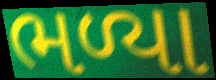
ભળ્યા